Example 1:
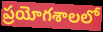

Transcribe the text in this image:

ప్రయోగశాలలో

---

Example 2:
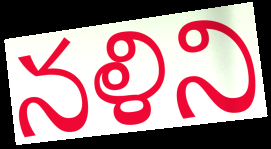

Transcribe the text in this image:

నళిని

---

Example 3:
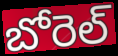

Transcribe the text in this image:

బోరెల్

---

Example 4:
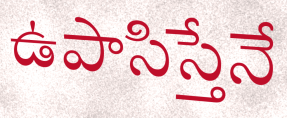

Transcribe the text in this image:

ఉపాసిస్తేనే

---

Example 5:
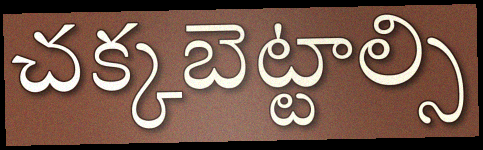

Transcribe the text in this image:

చక్కబెట్టాల్సి